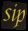
sip